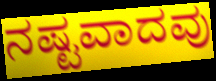
ನಷ್ಟವಾದವು